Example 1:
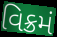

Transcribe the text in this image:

વિક્રમં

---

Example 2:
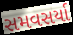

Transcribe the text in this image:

સમવસર્યા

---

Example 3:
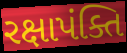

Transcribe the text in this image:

રક્ષાપંક્તિ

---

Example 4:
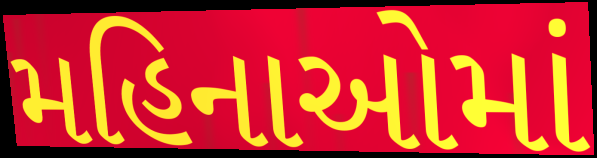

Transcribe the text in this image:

મહિનાઓમાં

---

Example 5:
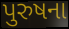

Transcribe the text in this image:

પુરુષના